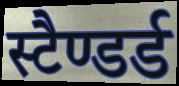
स्‍टैण्‍डर्ड